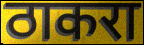
ठाकरा